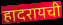
हादरायची